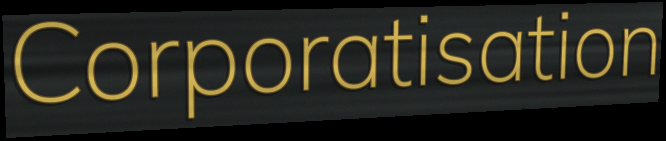
Corporatisation